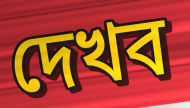
দেখব